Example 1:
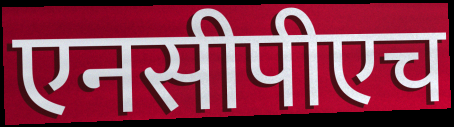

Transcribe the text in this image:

एनसीपीएच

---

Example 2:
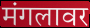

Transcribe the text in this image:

मंगलावर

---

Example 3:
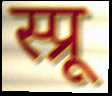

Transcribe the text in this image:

स्प्रू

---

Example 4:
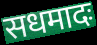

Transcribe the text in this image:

सधमादः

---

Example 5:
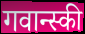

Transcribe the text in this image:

गवान्स्की